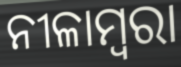
ନୀଳାମ୍ବରା